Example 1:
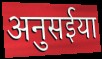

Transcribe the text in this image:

अनुसईया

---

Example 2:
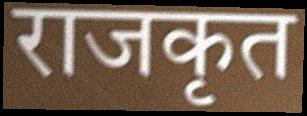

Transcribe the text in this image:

राजकृत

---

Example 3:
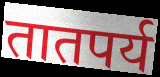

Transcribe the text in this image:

तातपर्य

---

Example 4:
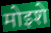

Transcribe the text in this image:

मोइशे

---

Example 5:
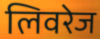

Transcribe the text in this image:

लिवरेज